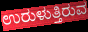
ಉರುಳುತ್ತಿರುವ